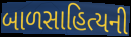
બાળસાહિત્યની